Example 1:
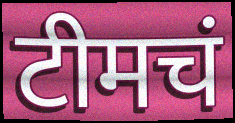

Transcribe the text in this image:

टीमचं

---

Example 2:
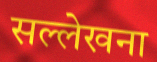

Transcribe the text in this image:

सल्लेखना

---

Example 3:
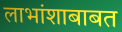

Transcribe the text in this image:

लाभांशाबाबत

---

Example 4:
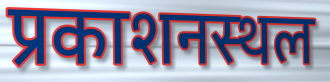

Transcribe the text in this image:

प्रकाशनस्थल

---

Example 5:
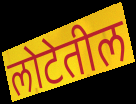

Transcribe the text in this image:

लोटेतील